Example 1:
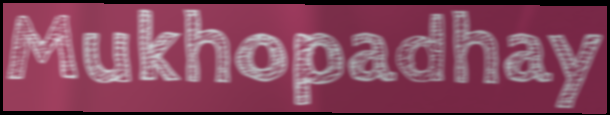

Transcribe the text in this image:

Mukhopadhay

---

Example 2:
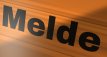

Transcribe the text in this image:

Melde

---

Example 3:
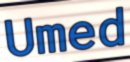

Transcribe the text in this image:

Umed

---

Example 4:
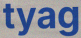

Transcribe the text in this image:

tyag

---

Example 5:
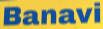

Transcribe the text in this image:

Banavi